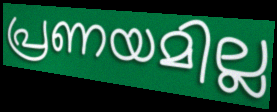
പ്രണയമില്ല